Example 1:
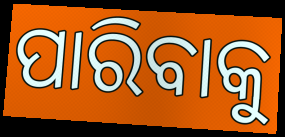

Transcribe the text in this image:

ପାରିବାକୁ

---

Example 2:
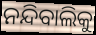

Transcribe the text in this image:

ନନ୍ଦିବାଲିକୁ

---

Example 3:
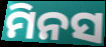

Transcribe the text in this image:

ମିନସ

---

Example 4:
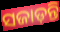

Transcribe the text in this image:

ସଜାଡ଼ନ୍ତି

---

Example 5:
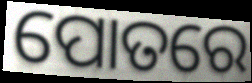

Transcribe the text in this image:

ପୋତରେ